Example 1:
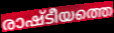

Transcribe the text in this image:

രാഷ്ടീയത്തെ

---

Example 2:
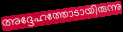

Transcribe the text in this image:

അദ്ദേഹത്തോടായിരുന്നു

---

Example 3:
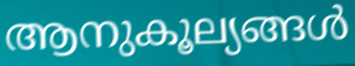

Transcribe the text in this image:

ആനുകൂല്യങ്ങൾ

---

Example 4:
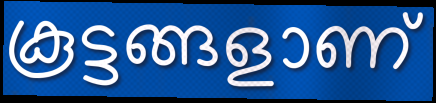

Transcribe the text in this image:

കൂട്ടങ്ങളാണ്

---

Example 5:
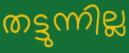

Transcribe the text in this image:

തട്ടുന്നില്ല